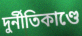
দুর্নীতিকাণ্ডে